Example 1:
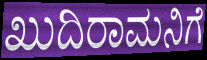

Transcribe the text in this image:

ಖುದಿರಾಮನಿಗೆ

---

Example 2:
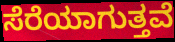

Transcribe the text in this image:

ಸೆರೆಯಾಗುತ್ತವೆ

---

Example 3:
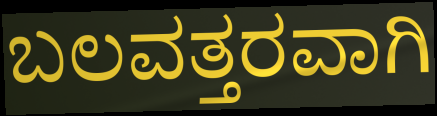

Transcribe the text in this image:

ಬಲವತ್ತರವಾಗಿ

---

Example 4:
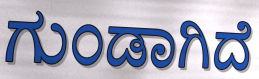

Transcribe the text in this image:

ಗುಂಡಾಗಿದೆ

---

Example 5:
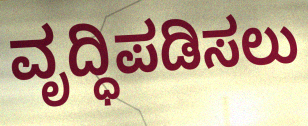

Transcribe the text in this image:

ವೃದ್ಧಿಪಡಿಸಲು